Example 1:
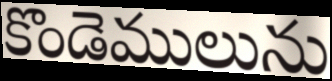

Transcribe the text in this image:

కొండెములును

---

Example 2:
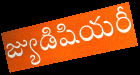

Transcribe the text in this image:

జ్యుడిషియరీ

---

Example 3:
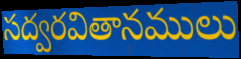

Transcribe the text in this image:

సద్వరవితానములు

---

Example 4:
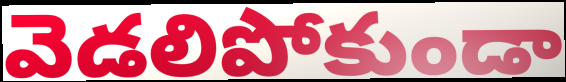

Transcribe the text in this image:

వెడలిపోకుండా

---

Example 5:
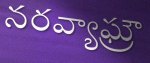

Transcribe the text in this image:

నరవ్యాఘ్రౌ